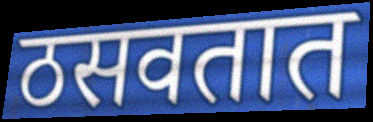
ठसवतात